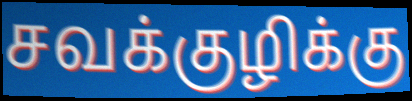
சவக்குழிக்கு